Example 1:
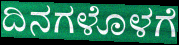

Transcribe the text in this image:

ದಿನಗಳೊಳಗೆ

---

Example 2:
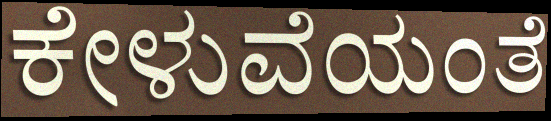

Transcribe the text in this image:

ಕೇಳುವೆಯಂತೆ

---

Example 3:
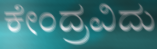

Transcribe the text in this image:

ಕೇಂದ್ರವಿದು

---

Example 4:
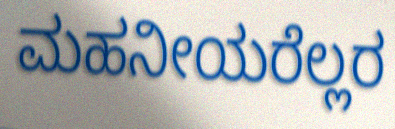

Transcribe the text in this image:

ಮಹನೀಯರೆಲ್ಲರ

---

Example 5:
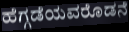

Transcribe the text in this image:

ಹೆಗ್ಗಡೆಯವರೊಡನೆ